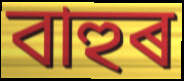
বাহুৰ